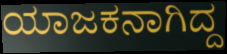
ಯಾಜಕನಾಗಿದ್ದ